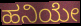
ಹನಿಯೇ